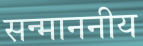
सन्माननीय